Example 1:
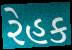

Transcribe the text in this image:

રેહક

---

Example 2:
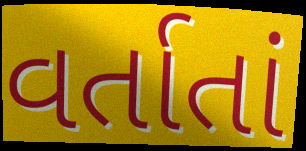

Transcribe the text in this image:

વર્તાતાં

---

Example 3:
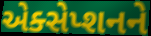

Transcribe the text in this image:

એક્સેપ્શનને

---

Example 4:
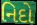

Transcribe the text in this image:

નિદો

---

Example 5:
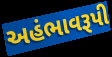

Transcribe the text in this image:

અહંભાવરૂપી